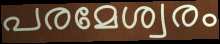
പരമേശ്വരം